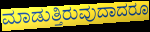
ಮಾಡುತ್ತಿರುವುದಾದರೂ